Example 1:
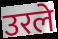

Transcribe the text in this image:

उरले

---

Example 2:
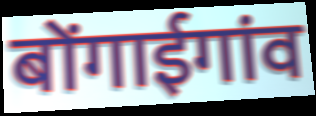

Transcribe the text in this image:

बोंगाईगांव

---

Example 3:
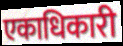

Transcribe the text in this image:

एकाधिकारी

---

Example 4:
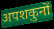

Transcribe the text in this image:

अपशकुनों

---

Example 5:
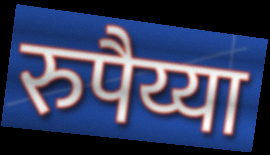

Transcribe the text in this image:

रुपैय्या